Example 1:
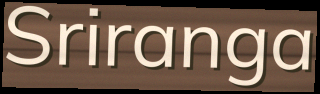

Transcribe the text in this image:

Sriranga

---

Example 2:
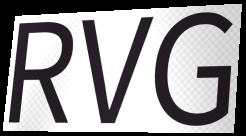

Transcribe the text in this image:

RVG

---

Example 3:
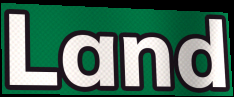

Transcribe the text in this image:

Land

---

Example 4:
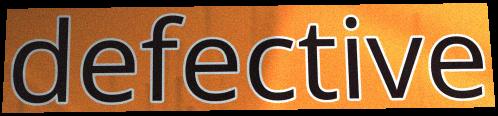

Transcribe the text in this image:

defective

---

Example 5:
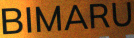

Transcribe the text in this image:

BIMARU